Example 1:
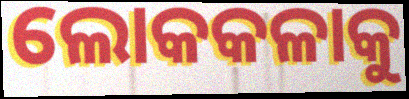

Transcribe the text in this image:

ଲୋକକଳାକୁ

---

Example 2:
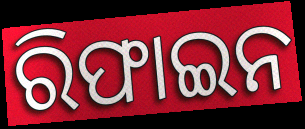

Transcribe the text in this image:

ରିଫାଇନ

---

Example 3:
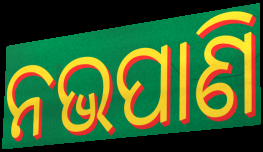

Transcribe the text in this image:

ନଭପାଣି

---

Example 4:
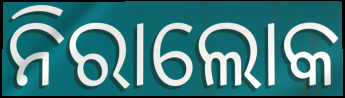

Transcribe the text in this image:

ନିରାଲୋକ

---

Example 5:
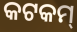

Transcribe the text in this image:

କଟକମ୍